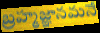
బ్రహ్మజ్ఞానమనే